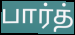
பார்த்